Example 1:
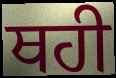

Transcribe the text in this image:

ਥਹੀ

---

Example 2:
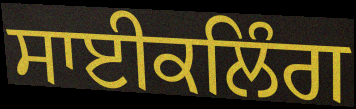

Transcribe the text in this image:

ਸਾਈਕਲਿੰਗ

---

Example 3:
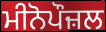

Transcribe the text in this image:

ਮੀਨੋਪੌਜ਼ਲ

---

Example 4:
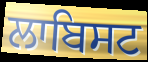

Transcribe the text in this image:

ਲਾਬਿਸਟ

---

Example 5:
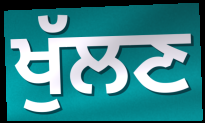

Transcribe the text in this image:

ਖੁੱਲਣ